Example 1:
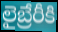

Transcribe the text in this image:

లైబ్రేరీకి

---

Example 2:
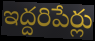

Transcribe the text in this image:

ఇద్దరిపేర్లు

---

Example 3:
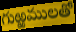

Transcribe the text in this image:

గుఱ్ఱములతో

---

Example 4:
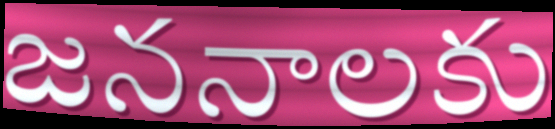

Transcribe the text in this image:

జననాలకు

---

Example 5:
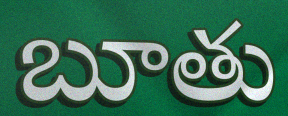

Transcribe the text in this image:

బూతు